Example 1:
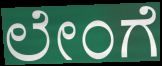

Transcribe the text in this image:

ಲೇಂಗೆ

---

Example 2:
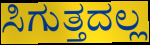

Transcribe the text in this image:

ಸಿಗುತ್ತದಲ್ಲ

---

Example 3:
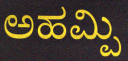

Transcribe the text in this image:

ಅಹಮ್ಪಿ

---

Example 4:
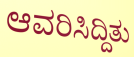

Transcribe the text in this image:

ಆವರಿಸಿದ್ದಿತು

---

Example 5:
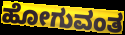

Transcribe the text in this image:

ಹೋಗುವಂತ